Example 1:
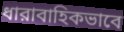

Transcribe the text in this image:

ধারাবাহিকভাবে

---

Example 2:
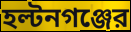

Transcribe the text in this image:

হল্টনগঞ্জের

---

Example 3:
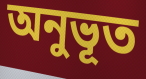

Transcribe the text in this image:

অনুভূত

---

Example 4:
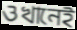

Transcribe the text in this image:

ওখানেই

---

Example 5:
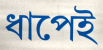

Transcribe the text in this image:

ধাপেই